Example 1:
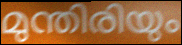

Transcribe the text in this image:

മുന്തിരിയും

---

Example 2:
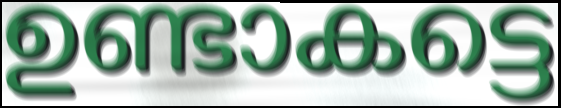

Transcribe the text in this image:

ഉണ്ടാകട്ടെ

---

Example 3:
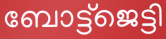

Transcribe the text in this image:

ബോട്ട്ജെട്ടി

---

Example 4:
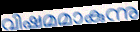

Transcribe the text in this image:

വിഷമമാകുന്നു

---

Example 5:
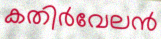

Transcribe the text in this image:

കതിർവേലൻ